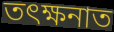
তৎক্ষনাত